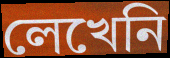
লেখেনি